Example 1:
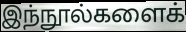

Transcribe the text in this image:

இந்நூல்களைக்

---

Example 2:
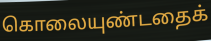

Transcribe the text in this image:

கொலையுண்டதைக்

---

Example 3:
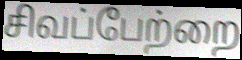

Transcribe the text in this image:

சிவப்பேற்றை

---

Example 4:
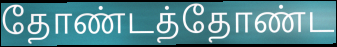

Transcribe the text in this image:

தோண்டத்தோண்ட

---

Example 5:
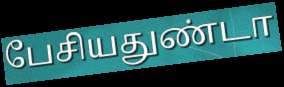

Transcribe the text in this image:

பேசியதுண்டா